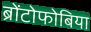
ब्रोंटोफोबिया